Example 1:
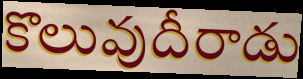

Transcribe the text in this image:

కొలువుదీరాడు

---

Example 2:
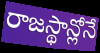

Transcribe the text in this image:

రాజస్థాన్లోనే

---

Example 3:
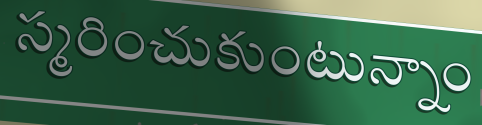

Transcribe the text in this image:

స్మరించుకుంటున్నాం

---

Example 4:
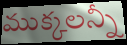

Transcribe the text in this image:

ముక్కలన్నీ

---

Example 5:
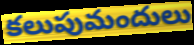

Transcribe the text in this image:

కలుపుమందులు